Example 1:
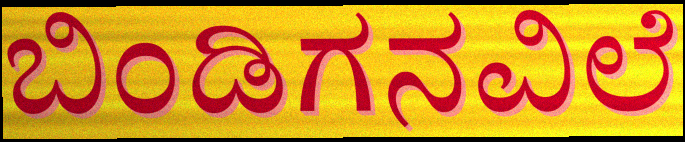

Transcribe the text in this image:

ಬಿಂಡಿಗನವಿಲೆ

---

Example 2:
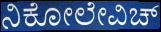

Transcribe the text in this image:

ನಿಕೋಲೇವಿಚ್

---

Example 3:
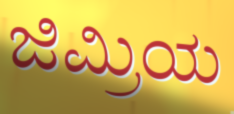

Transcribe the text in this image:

ಜಿಮ್ರಿಯ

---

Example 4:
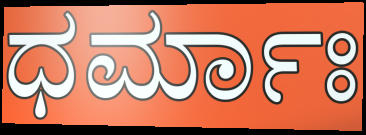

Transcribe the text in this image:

ಧರ್ಮಾಃ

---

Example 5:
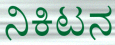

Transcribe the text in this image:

ನಿಕಿಟನ